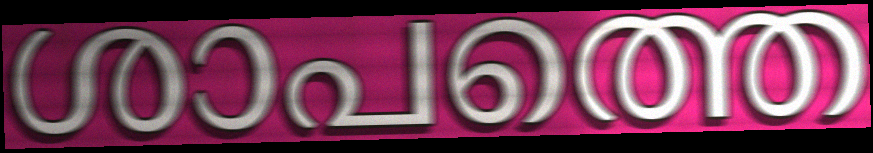
ശാപത്തെ